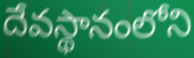
దేవస్థానంలోని